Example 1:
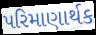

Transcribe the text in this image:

પરિમાણાર્થક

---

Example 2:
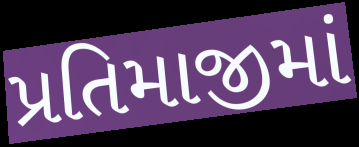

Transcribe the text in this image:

પ્રતિમાજીમાં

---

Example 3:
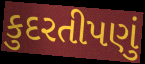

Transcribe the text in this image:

કુદરતીપણું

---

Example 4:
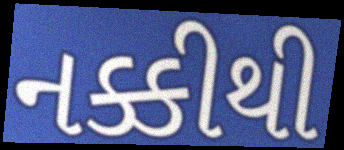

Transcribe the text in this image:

નક્કીથી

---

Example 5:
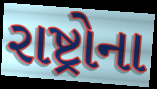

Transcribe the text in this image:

રાષ્ટ્રોના